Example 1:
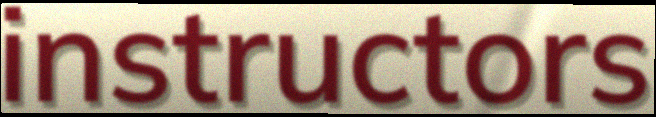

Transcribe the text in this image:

instructors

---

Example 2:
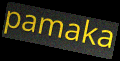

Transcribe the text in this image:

pamaka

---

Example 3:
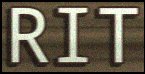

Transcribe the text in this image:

RIT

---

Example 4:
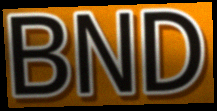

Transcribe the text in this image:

BND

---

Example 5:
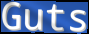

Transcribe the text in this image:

Guts